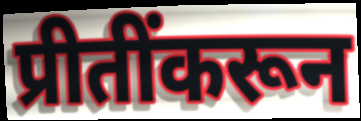
प्रीतींकरून